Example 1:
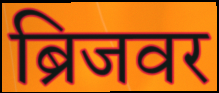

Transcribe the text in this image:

ब्रिजवर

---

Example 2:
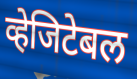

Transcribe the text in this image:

व्हेजिटेबल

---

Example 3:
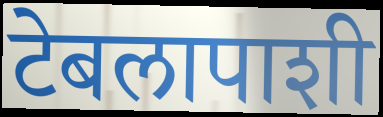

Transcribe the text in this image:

टेबलापाशी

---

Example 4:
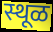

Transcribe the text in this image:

स्थूळ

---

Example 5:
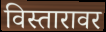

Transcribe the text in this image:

विस्तारावर